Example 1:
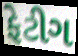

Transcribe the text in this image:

ફેટીગ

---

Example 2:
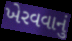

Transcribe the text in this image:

ખેરવવાનું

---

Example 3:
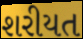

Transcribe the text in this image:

શરીયત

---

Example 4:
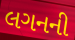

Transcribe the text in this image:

લગનની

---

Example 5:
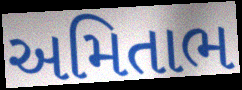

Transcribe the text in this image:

અમિતાભ